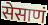
सेसाणं